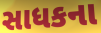
સાધકના